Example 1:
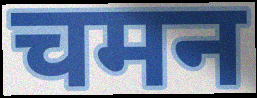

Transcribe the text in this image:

चमन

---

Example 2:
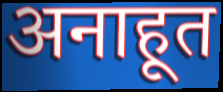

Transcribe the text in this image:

अनाहूत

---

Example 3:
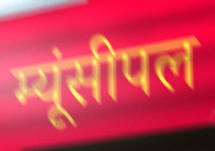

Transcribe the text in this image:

म्यूंसीपल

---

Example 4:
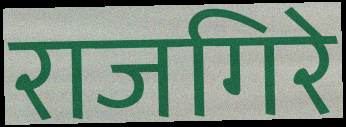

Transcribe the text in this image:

राजगिरे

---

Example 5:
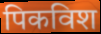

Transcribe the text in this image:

पिकविश